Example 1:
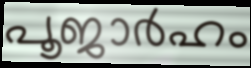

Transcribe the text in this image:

പൂജാർഹം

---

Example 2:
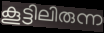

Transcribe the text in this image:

കൂട്ടിലിരുന്ന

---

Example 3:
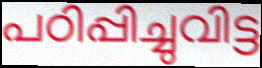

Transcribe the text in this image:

പഠിപ്പിച്ചുവിട്ട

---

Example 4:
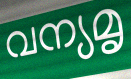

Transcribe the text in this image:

വന്യമൃ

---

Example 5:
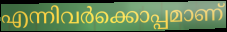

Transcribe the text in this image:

എന്നിവർക്കൊപ്പമാണ്